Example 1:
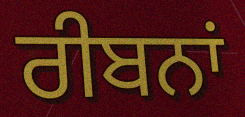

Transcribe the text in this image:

ਰੀਬਨਾਂ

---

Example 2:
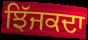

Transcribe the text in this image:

ਝਿੱਜਕਦਾ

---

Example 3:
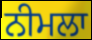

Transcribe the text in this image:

ਨੀਮਲਾ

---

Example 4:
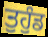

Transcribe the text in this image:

ਤੁਹੁੰਡ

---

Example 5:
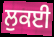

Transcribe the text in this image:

ਲੁਕਈ